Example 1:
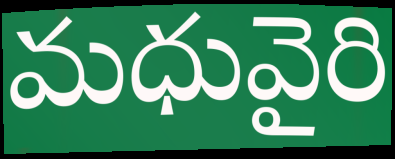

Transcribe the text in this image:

మధువైరి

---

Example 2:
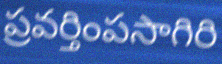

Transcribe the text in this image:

ప్రవర్తింపసాగిరి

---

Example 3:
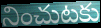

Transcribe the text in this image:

నించుటకు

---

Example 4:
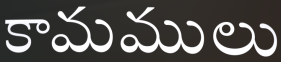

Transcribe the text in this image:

కామములు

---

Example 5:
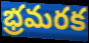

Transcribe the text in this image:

భ్రమరక